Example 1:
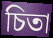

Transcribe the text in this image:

চিতা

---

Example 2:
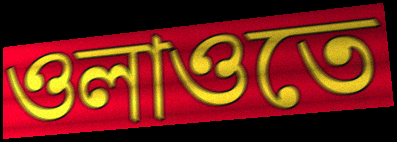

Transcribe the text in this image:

ওলাওতে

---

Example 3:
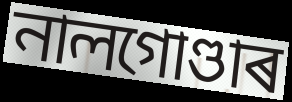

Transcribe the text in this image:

নালগোণ্ডাৰ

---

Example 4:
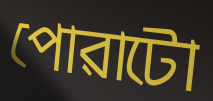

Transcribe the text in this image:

পোৱাটো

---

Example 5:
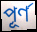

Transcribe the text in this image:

পূৰ্ণ